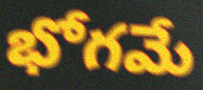
భోగమే